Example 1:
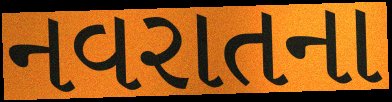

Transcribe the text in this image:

નવરાતના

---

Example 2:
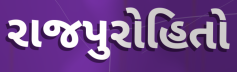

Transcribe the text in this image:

રાજપુરોહિતો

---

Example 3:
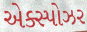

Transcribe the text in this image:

એક્સ્પોઝર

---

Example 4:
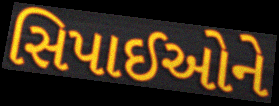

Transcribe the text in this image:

સિપાઈઓને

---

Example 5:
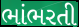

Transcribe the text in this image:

ભાંભરતી